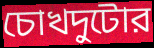
চোখদুটোর